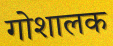
गोशालक